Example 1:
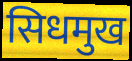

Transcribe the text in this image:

सिधमुख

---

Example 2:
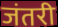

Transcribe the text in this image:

जंतरी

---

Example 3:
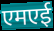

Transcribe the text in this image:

एमएई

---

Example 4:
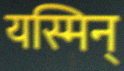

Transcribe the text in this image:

यस्मिन्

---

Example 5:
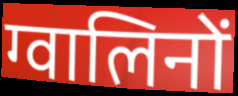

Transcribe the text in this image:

ग्वालिनों